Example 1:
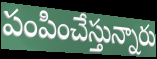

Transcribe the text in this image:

పంపించేస్తున్నారు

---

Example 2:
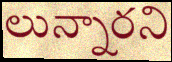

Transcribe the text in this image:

లున్నారని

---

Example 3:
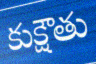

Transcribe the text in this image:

కుక్షౌతు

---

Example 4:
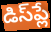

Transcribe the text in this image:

డిస్‌ప్లే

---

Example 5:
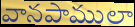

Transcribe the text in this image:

వానపాములా